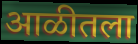
आळीतला